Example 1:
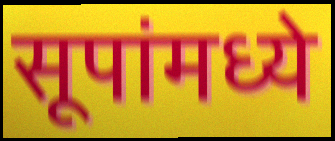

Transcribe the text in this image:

सूपांमध्ये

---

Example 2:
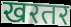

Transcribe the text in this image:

खरतर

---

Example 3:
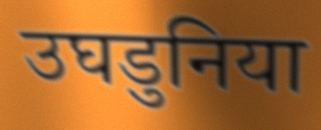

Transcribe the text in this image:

उघडुनिया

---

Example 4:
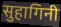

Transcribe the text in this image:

सुहागिनी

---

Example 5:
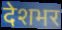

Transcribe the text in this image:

देशभर